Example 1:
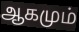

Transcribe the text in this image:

ஆகமும்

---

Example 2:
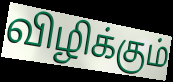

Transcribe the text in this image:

விழிக்கும்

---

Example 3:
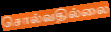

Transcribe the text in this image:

சொல்வதில்லை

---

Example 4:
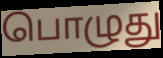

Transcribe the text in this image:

பொழுது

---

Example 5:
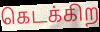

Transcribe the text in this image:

கெடக்கிற